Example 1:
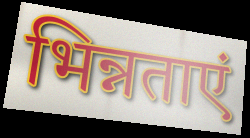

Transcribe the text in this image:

भिन्नताएं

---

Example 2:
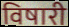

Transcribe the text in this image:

विषारी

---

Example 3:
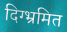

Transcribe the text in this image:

दिग्भ्रमित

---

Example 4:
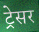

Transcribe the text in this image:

ट्रेसर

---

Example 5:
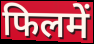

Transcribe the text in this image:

फिलमें